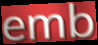
emb